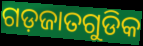
ଗଡ଼ଜାତଗୁଡିକ